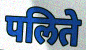
पलिते